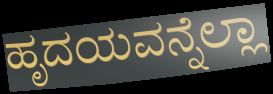
ಹೃದಯವನ್ನೆಲ್ಲಾ